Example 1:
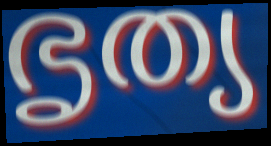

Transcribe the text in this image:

ഭൃത്യ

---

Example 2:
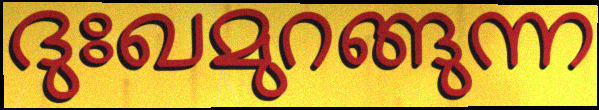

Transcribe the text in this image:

ദുഃഖമുറങ്ങുന്ന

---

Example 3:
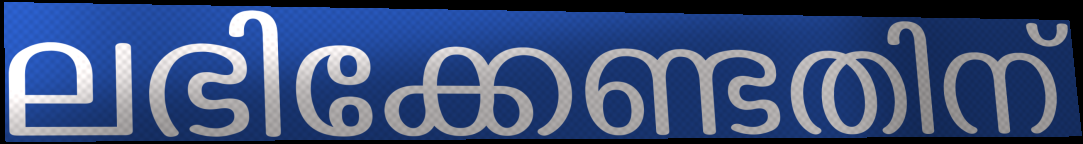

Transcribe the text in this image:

ലഭിക്കേണ്ടതിന്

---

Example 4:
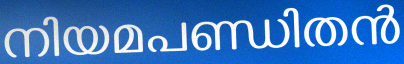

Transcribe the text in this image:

നിയമപണ്ഡിതൻ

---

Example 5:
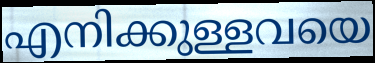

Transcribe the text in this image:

എനിക്കുള്ളവയെ